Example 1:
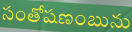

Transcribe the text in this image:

సంతోషణంబును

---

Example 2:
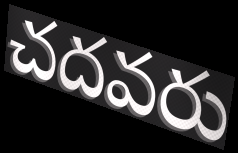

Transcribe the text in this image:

చదవరు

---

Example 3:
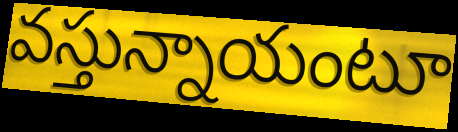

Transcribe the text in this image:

వస్తున్నాయంటూ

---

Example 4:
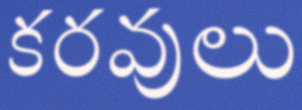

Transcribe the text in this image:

కరవులు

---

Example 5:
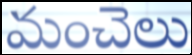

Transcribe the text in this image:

మంచెలు